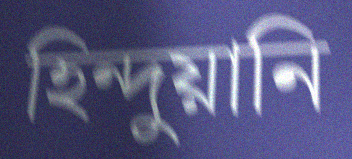
হিন্দুয়ানি